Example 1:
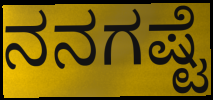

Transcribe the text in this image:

ನನಗಷ್ಟೆ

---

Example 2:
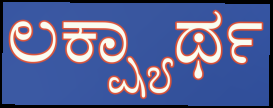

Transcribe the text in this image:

ಲಕ್ಷ್ಯಾರ್ಥ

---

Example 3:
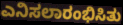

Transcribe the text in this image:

ಎನಿಸಲಾರಂಭಿಸಿತು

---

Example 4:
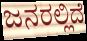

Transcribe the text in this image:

ಜನರಲ್ಲಿದೆ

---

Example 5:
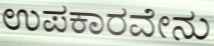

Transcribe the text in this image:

ಉಪಕಾರವೇನು